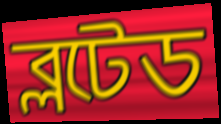
ব্লটেড